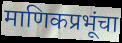
माणिकप्रभूंचा